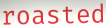
roasted